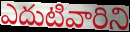
ఎదుటివారిని